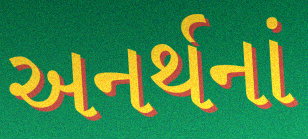
અનર્થનાં